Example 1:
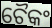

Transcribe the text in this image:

ଚୈକଂ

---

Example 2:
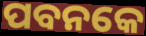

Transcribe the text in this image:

ପବନକେ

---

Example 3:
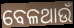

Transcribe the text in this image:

ବେଳଥାଉଁ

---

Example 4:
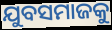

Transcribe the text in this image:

ଯୁବସମାଜକୁ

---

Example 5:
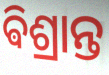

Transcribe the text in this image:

ଵିଶ୍ରାନ୍ତ